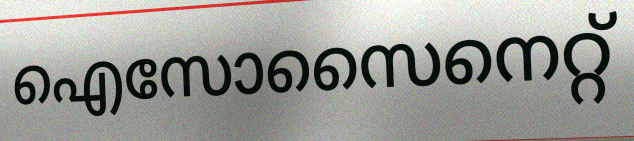
ഐസോസൈനെറ്റ്